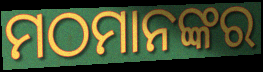
ମଠମାନଙ୍କର